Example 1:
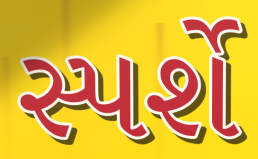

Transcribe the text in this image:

સ્પર્શે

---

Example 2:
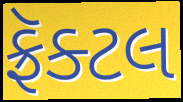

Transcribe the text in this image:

ફ્રૅક્ટલ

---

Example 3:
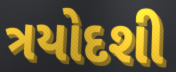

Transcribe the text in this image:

ત્રયોદશી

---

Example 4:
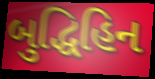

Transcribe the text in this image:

બુદ્ધિહિન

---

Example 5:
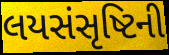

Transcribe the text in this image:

લયસંસૃષ્ટિની